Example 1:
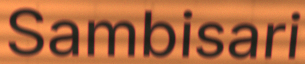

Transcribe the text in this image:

Sambisari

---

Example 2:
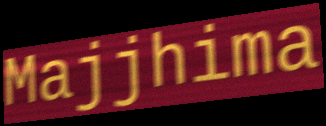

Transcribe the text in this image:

Majjhima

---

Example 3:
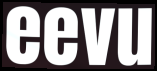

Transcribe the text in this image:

eevu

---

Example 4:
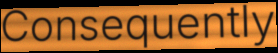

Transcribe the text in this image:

Consequently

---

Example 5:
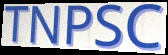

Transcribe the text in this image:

TNPSC